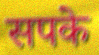
सपके